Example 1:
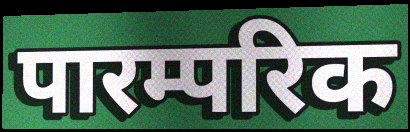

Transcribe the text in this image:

पारम्परिक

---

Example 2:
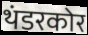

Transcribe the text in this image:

थंडरकोर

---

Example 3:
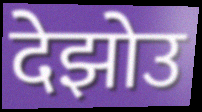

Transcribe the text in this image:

देझोउ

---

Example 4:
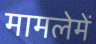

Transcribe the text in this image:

मामलेमें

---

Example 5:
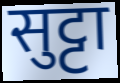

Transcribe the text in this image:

सुट्टा